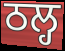
ਠਲ੍ਹ